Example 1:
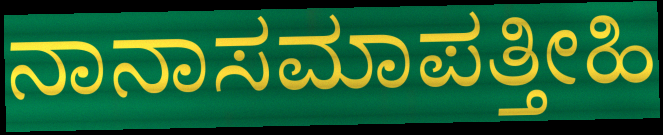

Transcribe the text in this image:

ನಾನಾಸಮಾಪತ್ತೀಹಿ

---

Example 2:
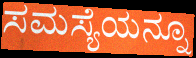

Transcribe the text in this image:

ಸಮಸ್ಯೆಯನ್ನೂ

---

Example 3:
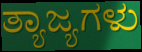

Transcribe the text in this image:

ತ್ಯಾಜ್ಯಗಳು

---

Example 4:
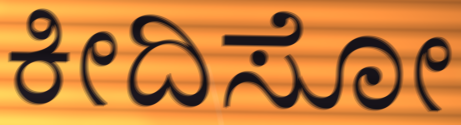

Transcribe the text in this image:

ಕೀದಿಸೋ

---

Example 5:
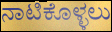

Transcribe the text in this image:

ನಾಟಿಕೊಳ್ಳಲು